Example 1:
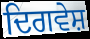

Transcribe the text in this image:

ਦਿਗਵੇਸ਼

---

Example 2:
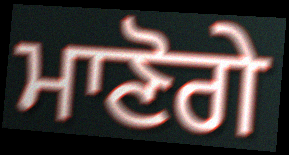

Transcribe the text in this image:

ਮਾਣੋਗੇ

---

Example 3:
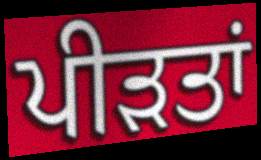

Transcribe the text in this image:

ਪੀਡ਼ਤਾਂ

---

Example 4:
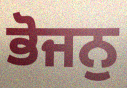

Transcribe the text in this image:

ਭੋਜਨੁ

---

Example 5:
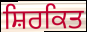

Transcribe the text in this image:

ਸ਼ਿਰਕਿਤ